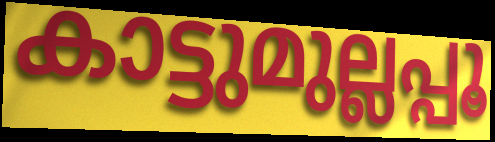
കാട്ടുമുല്ലപ്പൂ